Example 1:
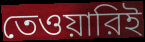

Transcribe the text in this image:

তেওয়ারিই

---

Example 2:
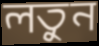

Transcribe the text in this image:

লতুন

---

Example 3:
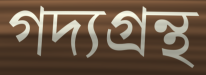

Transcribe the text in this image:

গদ্যগ্রন্থ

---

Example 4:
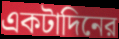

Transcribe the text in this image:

একটাদিনের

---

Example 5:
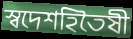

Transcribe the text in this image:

স্বদেশহিতৈষী